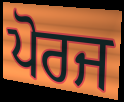
ਪੋਰਜ